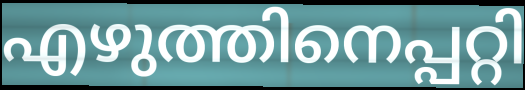
എഴുത്തിനെപ്പറ്റി